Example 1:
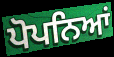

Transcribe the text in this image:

ਪੋਪਨਿਆਂ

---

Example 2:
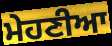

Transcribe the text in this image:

ਮੇਹਣੀਆ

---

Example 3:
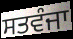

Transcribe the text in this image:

ਸਤਵੰਜਾ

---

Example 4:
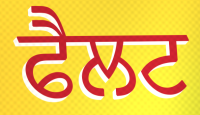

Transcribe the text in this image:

ਫੈਲਟ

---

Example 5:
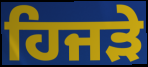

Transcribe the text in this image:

ਹਿਜੜੇ